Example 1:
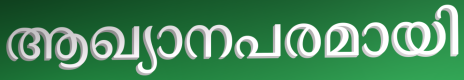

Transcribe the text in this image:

ആഖ്യാനപരമായി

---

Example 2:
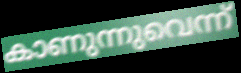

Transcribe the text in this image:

കാണുന്നുവെന്ന്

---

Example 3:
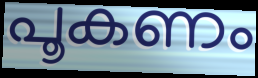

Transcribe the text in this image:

പൂകണം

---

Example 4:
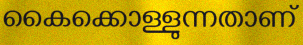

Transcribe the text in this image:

കൈക്കൊള്ളുന്നതാണ്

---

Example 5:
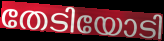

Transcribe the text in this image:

തേടിയോടി